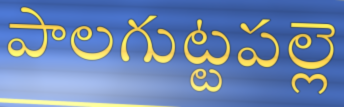
పాలగుట్టపల్లె